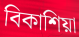
বিকাশিয়া